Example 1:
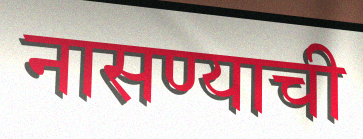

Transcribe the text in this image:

नासण्याची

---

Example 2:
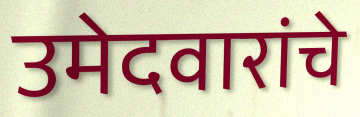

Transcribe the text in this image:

उमेदवारांचे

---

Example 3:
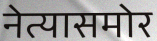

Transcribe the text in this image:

नेत्यासमोर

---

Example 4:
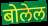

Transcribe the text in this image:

बोलेल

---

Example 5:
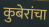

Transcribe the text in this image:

कुबेरांचा